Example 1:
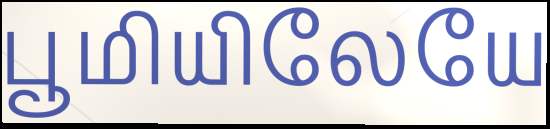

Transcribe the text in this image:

பூமியிலேயே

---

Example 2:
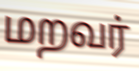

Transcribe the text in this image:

மறவர்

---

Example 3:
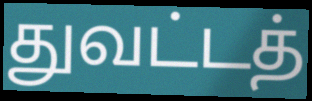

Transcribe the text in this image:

துவட்டத்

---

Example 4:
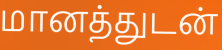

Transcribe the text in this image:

மானத்துடன்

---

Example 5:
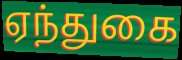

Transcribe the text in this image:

ஏந்துகை